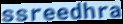
ssreedhra